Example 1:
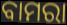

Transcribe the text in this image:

ବାମରା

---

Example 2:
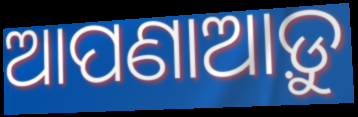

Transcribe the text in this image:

ଆପଣାଆଡ଼ୁ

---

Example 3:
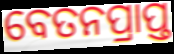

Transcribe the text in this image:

ବେତନପ୍ରାପ୍ତ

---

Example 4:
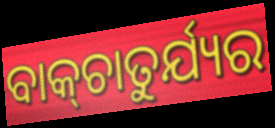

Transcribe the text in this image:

ବାକ୍‍ଚାତୁର୍ଯ୍ୟର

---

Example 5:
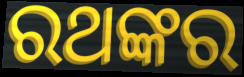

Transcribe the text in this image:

ରଥଙ୍କର